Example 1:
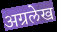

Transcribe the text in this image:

अग्रलेख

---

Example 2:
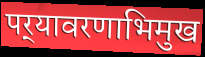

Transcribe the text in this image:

पर्यावरणाभिमुख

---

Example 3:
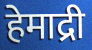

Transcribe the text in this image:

हेमाद्री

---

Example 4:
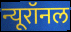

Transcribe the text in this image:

न्यूरॉनल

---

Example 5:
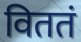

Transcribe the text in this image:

विततं